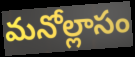
మనోల్లాసం